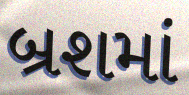
બ્રશમાં